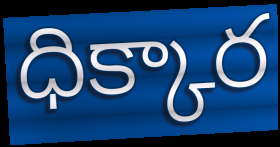
ధిక్కార